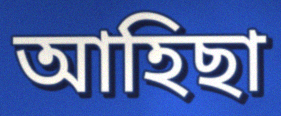
আহিছা